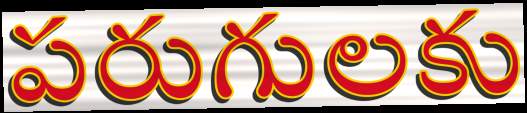
పరుగులకు